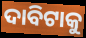
ଦାବିଟାକୁ